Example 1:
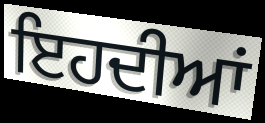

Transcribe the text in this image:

ਇਹਦੀਆਂ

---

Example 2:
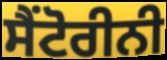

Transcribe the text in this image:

ਸੈਂਟੋਰੀਨੀ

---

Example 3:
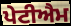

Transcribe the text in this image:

ਪੇਟੀਐਮ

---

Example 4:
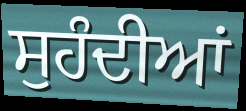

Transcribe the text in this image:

ਸੁਹੰਦੀਆਂ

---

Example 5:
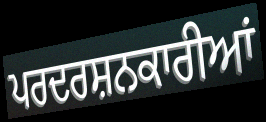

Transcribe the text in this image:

ਪਰਦਰਸ਼ਨਕਾਰੀਆਂ